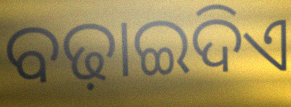
ବଢ଼ାଇଦିଏ